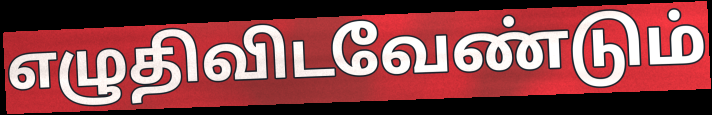
எழுதிவிடவேண்டும்